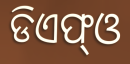
ଡିଏଫ୍ଓ